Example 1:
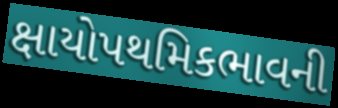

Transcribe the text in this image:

ક્ષાયોપથમિકભાવની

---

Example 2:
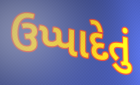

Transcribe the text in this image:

ઉપ્પાદેતું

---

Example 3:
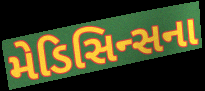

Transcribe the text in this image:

મેડિસિન્સના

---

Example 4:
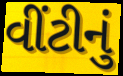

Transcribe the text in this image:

વીંટીનું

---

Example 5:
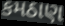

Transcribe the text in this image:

કમઠાણ